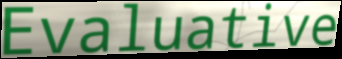
Evaluative